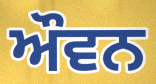
ਔਵਨ